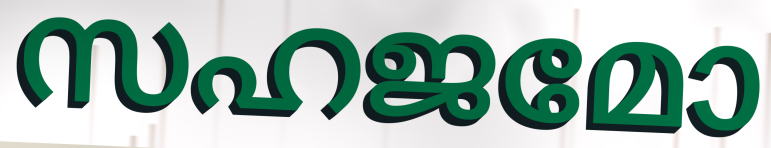
സഹജമോ